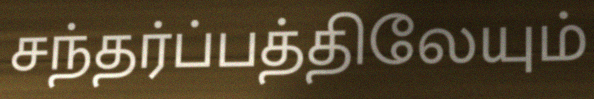
சந்தர்ப்பத்திலேயும்